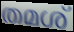
തമശ്